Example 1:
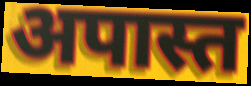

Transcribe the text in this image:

अपास्त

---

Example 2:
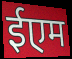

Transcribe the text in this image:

ईएम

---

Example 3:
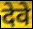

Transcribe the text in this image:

देवे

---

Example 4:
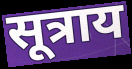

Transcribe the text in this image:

सूत्राय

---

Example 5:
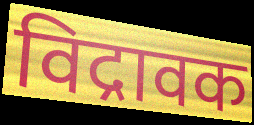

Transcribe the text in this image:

विद्रावक